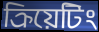
ক্রিয়েটিং